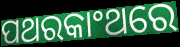
ପଥରକାଂଥରେ